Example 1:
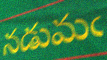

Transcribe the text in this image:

నడుమఁ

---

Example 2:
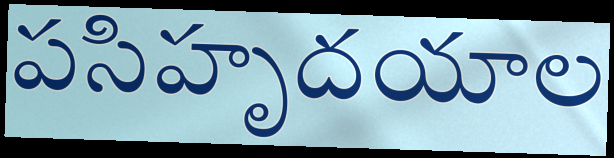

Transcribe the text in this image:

పసిహృదయాల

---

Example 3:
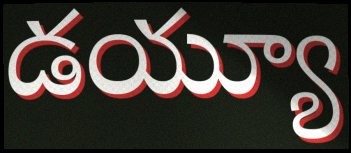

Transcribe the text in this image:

డయ్యూ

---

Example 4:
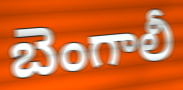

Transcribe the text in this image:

బెంగాలీ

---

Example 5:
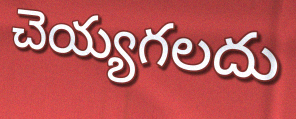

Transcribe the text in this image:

చెయ్యగలదు